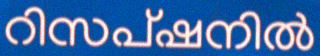
റിസപ്ഷനിൽ